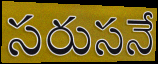
సరుసనే